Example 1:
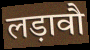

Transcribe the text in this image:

लड़ावौ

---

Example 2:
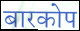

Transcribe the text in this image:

बारकोप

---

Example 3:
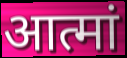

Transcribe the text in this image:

आत्मां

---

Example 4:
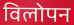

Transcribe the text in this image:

विलोपन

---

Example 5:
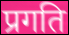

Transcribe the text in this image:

प्रगति